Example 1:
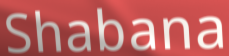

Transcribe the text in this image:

Shabana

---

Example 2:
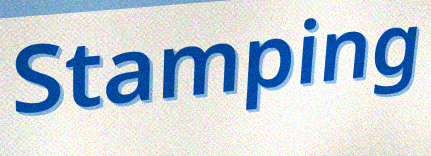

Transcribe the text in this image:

Stamping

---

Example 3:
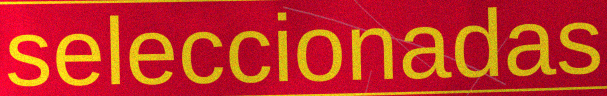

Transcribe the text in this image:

seleccionadas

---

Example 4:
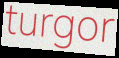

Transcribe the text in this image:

turgor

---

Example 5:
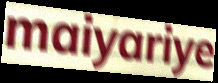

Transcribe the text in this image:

maiyariye